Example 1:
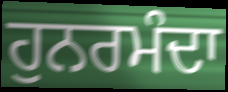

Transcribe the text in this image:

ਹੁਨਰਮੰਦਾ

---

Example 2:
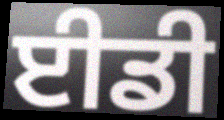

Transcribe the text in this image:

ਈਡੀ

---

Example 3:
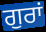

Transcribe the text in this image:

ਗੁਰਾਂ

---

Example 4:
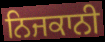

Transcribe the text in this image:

ਨਿਜਕਾਨੀ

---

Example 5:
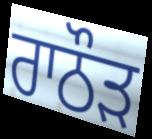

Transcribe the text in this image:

ਰਾਠੌੜ